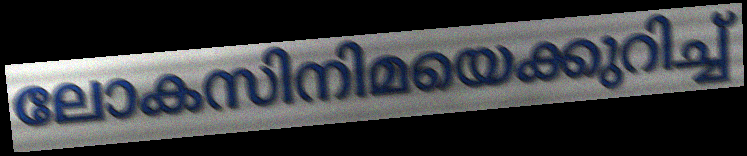
ലോകസിനിമയെക്കുറിച്ച്